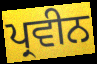
ਪ੍ਰਵੀਨ